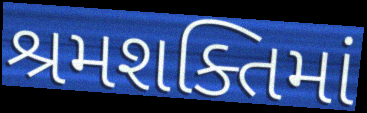
શ્રમશક્તિમાં